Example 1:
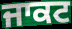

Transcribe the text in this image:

ਜਾਕਟ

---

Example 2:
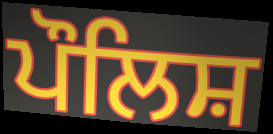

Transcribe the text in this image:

ਪੌਲਿਸ਼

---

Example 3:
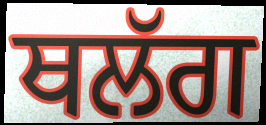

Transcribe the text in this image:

ਥਲੱਗ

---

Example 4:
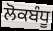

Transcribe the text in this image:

ਲੋਕਬੰਧੂ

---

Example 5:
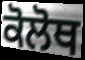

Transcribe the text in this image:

ਕੋਲੋਥ